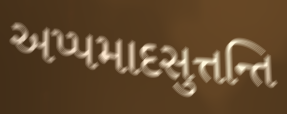
અપ્પમાદસુત્તન્તિ